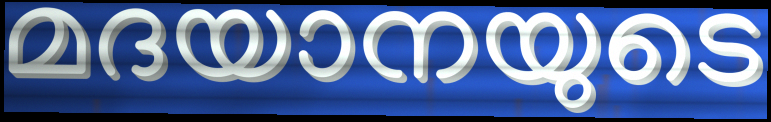
മദയാനയുടെ